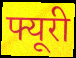
फ्यूरी